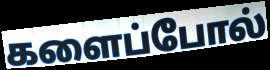
களைப்போல்